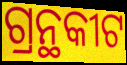
ଗ୍ରନ୍ଥକୀଟ